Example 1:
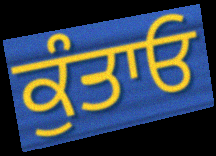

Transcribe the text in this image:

ਕੁੰਤਾਓ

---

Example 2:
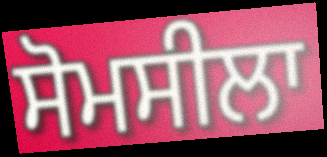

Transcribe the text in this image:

ਸੋਮਸੀਲਾ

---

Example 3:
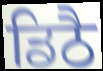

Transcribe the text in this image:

ਡਿਠੈ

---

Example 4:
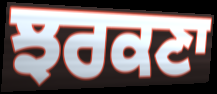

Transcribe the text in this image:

ਝਰਕਣਾ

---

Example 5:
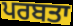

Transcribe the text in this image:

ਪਰਬਤਾ